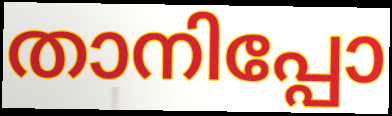
താനിപ്പോ